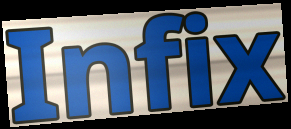
Infix